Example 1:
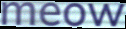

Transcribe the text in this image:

meow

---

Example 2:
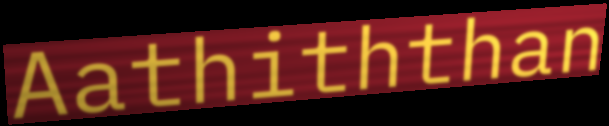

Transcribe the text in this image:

Aathiththan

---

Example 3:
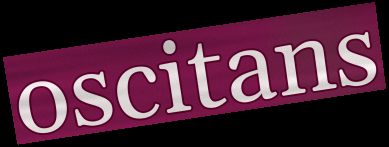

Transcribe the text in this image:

oscitans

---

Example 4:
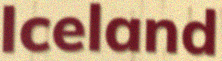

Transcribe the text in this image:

Iceland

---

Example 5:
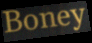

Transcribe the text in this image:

Boney